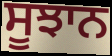
ਸੂਝਾਨ